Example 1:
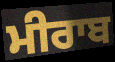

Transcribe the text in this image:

ਮੀਰਾਬ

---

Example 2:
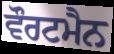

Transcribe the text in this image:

ਵੌਰਟਮੈਨ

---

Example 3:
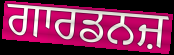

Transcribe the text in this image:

ਗਾਰਡਨਜ਼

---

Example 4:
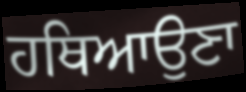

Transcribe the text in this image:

ਹਥਿਆਉਣਾ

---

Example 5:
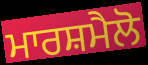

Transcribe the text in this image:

ਮਾਰਸ਼ਮੈਲੋ